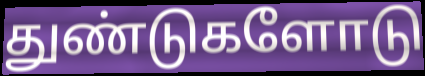
துண்டுகளோடு